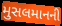
મુસલમાનની